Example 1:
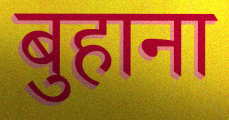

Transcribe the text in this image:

बुहाना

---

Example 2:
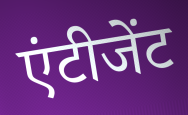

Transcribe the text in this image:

एंटीजेंट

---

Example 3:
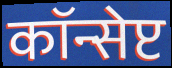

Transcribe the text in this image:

कॉन्सेप्ट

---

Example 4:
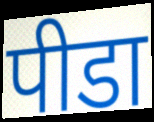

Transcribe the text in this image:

पीडा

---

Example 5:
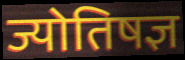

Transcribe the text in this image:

ज्योतिषज्ञ